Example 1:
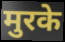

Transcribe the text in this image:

मुरके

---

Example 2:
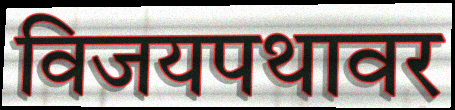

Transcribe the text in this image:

विजयपथावर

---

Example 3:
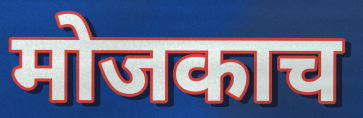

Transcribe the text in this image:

मोजकाच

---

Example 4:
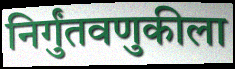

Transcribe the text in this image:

निर्गुंतवणुकीला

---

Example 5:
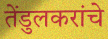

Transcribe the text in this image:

तेंडुलकरांचे